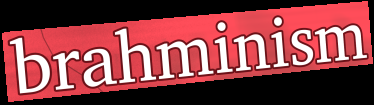
brahminism